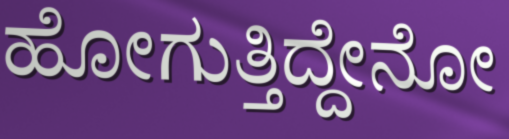
ಹೋಗುತ್ತಿದ್ದೇನೋ